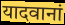
यादवानां